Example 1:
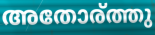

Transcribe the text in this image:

അതോര്ത്തു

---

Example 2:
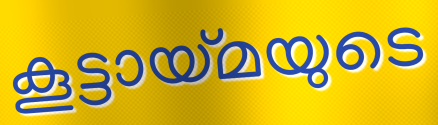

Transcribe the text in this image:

കൂട്ടായ്മയുടെ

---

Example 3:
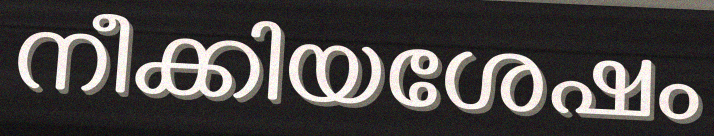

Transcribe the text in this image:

നീക്കിയശേഷം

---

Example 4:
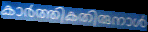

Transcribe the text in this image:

കാർത്തികതിരുനാൾ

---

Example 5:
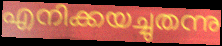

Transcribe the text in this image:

എനിക്കയച്ചുതന്നു